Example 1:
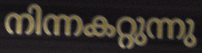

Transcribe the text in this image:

നിന്നകറ്റുന്നു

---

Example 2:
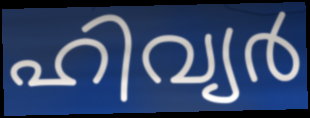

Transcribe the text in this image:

ഹിവ്യർ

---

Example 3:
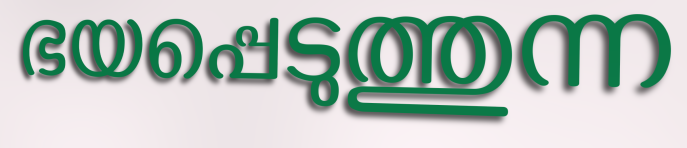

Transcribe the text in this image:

ഭയപ്പെടുത്തുന്ന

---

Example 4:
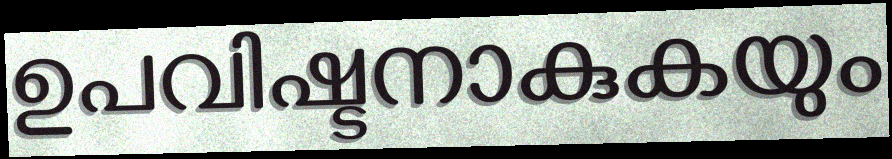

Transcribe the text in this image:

ഉപവിഷ്ടനാകുകയും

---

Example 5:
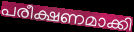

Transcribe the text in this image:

പരീക്ഷണമാക്കി